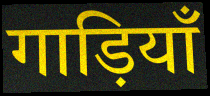
गाड़ियाँ